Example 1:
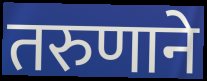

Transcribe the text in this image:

तरुणाने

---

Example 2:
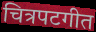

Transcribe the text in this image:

चित्रपटगीत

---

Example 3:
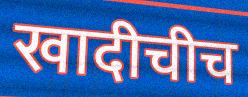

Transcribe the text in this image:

खादीचीच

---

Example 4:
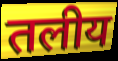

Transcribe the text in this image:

तलीय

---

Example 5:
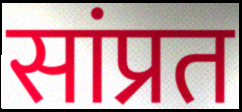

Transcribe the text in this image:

सांप्रत